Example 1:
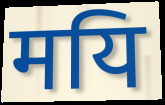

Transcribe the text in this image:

मयि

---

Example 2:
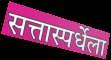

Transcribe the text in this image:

सत्तास्पर्धेला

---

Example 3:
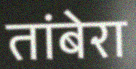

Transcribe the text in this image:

तांबेरा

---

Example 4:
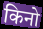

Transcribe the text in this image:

किनो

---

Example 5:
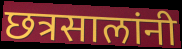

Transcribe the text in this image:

छत्रसालांनी